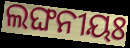
ଲଙ୍ଘନୀୟଃ